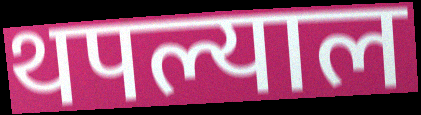
थपल्याल